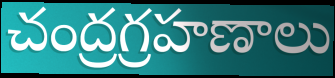
చంద్రగ్రహణాలు